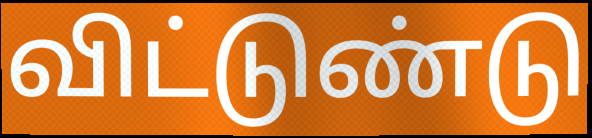
விட்டுண்டு